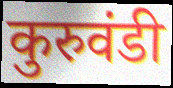
कुरुवंडी